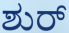
ಶುರ್